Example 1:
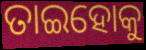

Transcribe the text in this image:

ତାଇହୋକୁ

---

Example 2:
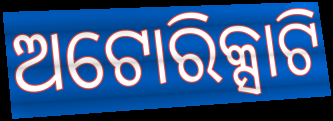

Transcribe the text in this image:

ଅଟୋରିକ୍ସାଟି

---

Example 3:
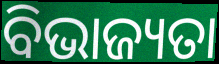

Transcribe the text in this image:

ବିଭାଜ୍ୟତା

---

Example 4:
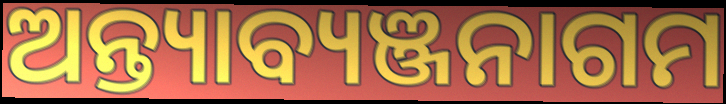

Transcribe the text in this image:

ଅନ୍ତ୍ୟାବ୍ୟଞ୍ଜନାଗମ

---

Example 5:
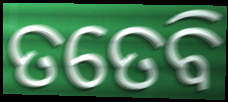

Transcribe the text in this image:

ତତେବି